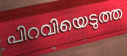
പിറവിയെടുത്ത